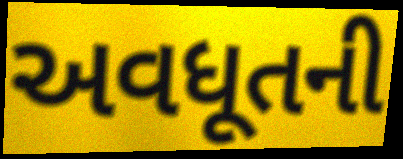
અવધૂતની